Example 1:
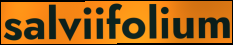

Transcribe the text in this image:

salviifolium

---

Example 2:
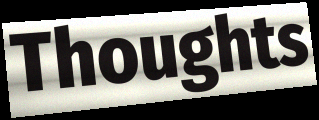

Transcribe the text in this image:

Thoughts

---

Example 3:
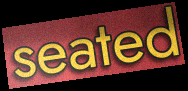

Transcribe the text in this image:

seated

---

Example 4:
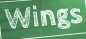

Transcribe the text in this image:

Wings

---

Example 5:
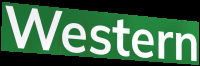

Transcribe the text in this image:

Western